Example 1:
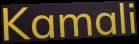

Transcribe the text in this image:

Kamali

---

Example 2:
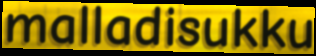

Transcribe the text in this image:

malladisukku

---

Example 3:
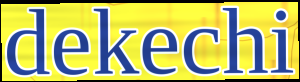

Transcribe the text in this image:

dekechi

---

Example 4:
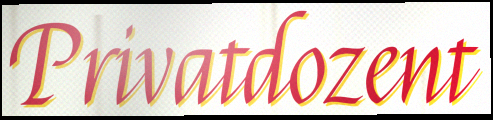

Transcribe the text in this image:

Privatdozent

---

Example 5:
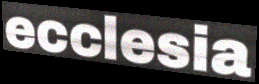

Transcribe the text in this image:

ecclesia